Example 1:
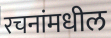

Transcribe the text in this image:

रचनांमधील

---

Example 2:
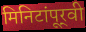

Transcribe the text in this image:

मिनिटांपूर्वी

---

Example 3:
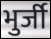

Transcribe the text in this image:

भुर्जी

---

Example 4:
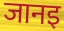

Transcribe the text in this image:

जानइ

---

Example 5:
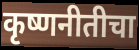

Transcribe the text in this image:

कृष्णनीतीचा